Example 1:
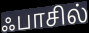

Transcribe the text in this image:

ஃபாசில்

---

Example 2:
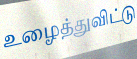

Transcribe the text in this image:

உழைத்துவிட்டு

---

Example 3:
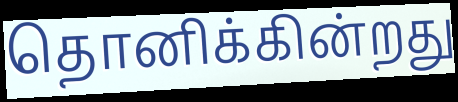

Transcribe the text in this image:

தொனிக்கின்றது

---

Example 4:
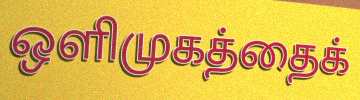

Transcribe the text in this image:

ஒளிமுகத்தைக்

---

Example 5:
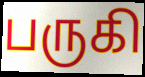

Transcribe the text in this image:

பருகி